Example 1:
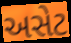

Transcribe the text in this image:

અસેટ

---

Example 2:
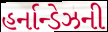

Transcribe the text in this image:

હર્નાન્ડેઝની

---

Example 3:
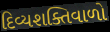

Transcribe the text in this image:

દિવ્યશક્તિવાળો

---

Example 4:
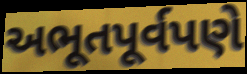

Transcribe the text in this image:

અભૂતપૂર્વપણે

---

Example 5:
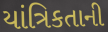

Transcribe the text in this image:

યાંત્રિકતાની